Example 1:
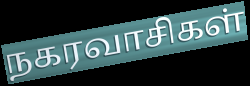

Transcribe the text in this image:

நகரவாசிகள்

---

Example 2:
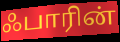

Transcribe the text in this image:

ஃபாரின்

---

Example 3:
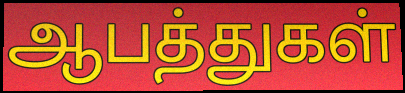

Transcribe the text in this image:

ஆபத்துகள்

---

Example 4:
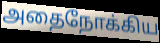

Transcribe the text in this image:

அதைநோக்கிய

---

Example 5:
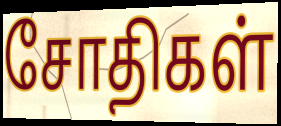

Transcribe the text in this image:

சோதிகள்